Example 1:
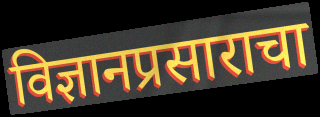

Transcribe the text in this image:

विज्ञानप्रसाराचा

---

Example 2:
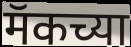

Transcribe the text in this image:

मॅकच्या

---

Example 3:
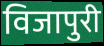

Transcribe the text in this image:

विजापुरी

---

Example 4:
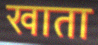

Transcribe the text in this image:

खाता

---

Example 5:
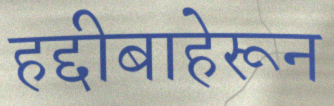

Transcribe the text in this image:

हद्दीबाहेरून